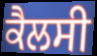
ਕੈਲਸੀ